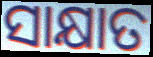
ସାକ୍ଷାତ